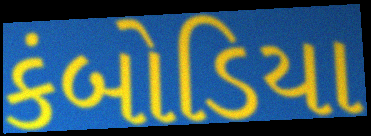
કંબોડિયા